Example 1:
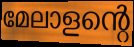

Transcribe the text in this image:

മേലാളന്റെ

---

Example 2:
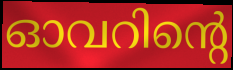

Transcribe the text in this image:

ഓവറിന്റെ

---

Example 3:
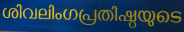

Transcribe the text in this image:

ശിവലിംഗപ്രതിഷ്ഠയുടെ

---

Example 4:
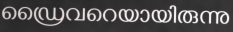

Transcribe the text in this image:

ഡ്രൈവറെയായിരുന്നു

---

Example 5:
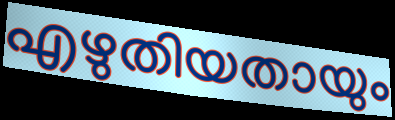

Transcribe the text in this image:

എഴുതിയതായും